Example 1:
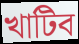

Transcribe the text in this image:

খাটিব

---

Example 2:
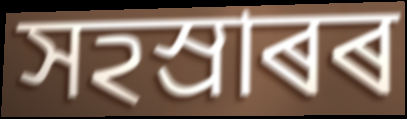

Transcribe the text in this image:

সহস্ৰাৰৰ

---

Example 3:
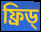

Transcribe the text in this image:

ফ্ৰিড্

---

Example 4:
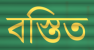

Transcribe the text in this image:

বস্তিত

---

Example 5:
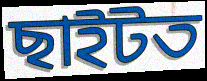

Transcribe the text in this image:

ছাইটত